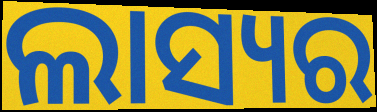
ଲାସ୍ୟର